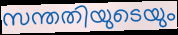
സന്തതിയുടെയും